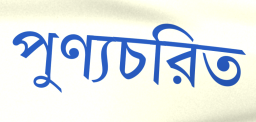
পুণ্যচরিত